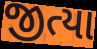
જીત્યા